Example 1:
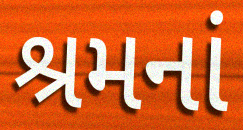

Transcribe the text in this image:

શ્રમનાં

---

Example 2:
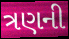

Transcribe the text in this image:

ત્રણની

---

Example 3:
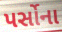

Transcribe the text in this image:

પર્સોના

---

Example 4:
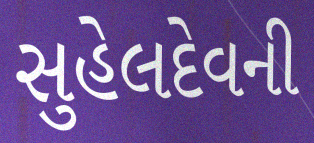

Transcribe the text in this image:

સુહેલદેવની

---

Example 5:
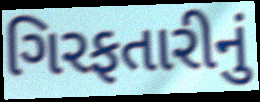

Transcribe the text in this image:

ગિરફતારીનું